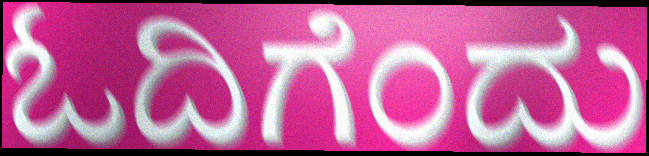
ಓದಿಗೆಂದು